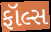
ફૉલ્સ